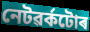
নেটৱৰ্কটোৰ